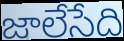
జాలేసేది